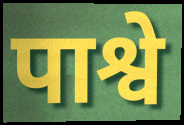
पाश्वे